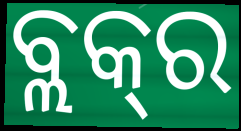
ବ୍ଲକ୍‍ର